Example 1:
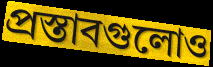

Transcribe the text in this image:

প্রস্তাবগুলোও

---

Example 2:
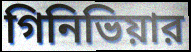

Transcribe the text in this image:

গিনিভিয়ার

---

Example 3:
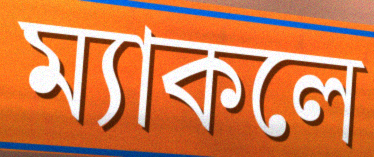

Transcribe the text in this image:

ম্যাকলে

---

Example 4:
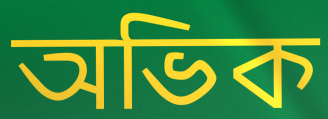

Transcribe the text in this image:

অভিক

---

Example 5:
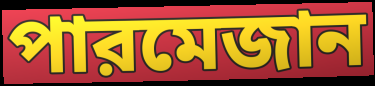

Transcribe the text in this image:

পারমেজান